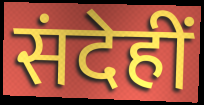
संदेहीं